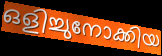
ഒളിച്ചുനോക്കിയ